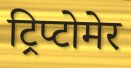
ट्रिप्टोमेर